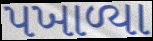
પખાળ્યા